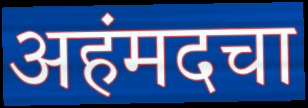
अहंमदचा